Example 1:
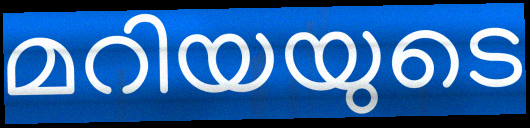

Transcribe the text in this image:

മറിയയുടെ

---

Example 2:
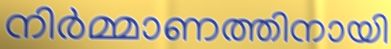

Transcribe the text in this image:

നിർമ്മാണത്തിനായി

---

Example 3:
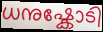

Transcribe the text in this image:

ധനുഷ്കോടി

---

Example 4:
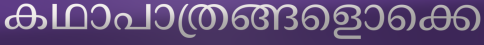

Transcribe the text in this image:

കഥാപാത്രങ്ങളൊക്കെ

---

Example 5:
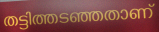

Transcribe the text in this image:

തട്ടിത്തടഞ്ഞതാണ്